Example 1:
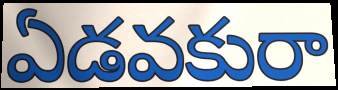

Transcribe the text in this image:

ఏడవకురా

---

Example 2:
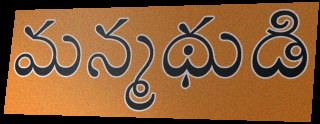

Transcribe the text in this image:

మన్మథుడి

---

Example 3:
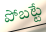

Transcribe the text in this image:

పోబట్టే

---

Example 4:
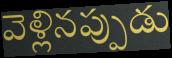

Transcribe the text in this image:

వెళ్లినప్పుడు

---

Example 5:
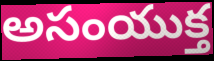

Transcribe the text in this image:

అసంయుక్త